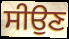
ਸੀਉਣ